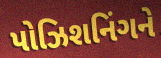
પોઝિશનિંગને